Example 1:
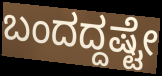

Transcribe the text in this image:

ಬಂದದ್ದಷ್ಟೇ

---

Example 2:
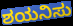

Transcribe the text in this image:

ಶಯನಿಸು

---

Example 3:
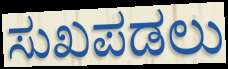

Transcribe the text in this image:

ಸುಖಪಡಲು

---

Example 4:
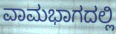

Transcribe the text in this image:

ವಾಮಭಾಗದಲ್ಲಿ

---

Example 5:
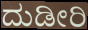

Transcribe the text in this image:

ದುಡೀರಿ